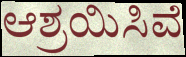
ಆಶ್ರಯಿಸಿವೆ